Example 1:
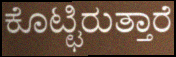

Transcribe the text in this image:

ಕೊಟ್ಟಿರುತ್ತಾರೆ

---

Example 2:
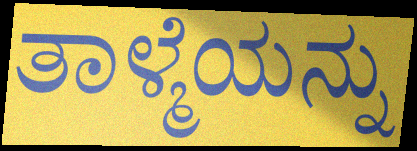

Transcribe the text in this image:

ತಾಳ್ಮೆಯನ್ನು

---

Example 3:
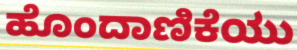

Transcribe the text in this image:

ಹೊಂದಾಣಿಕೆಯು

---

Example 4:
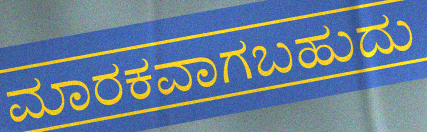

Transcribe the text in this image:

ಮಾರಕವಾಗಬಹುದು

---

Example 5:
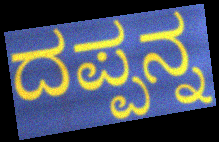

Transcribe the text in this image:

ದಪ್ಪನ್ನ